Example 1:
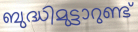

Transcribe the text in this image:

ബുദ്ധിമുട്ടാറുണ്ട്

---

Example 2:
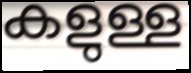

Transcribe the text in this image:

കളുള്ള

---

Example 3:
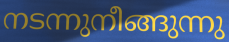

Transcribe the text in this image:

നടന്നുനീങ്ങുന്നു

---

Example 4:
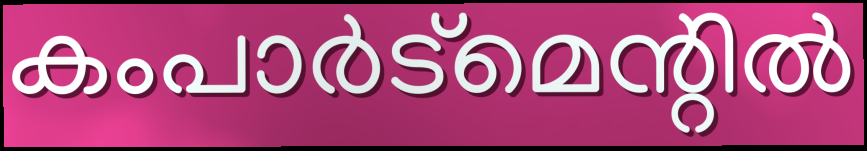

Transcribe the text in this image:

കംപാർട്മെന്റിൽ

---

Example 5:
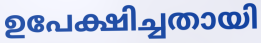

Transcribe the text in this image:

ഉപേക്ഷിച്ചതായി